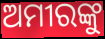
ଅମୀରଙ୍କୁ